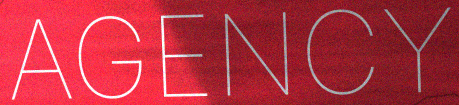
AGENCY